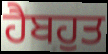
ਹੈਬਹੁਤ